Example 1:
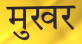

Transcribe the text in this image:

मुखर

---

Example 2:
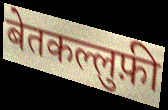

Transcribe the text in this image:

बेतकल्लुफ़ी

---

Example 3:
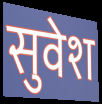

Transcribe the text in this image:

सुवेश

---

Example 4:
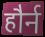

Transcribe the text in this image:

हौर्न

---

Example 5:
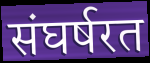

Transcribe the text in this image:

संघर्षरत